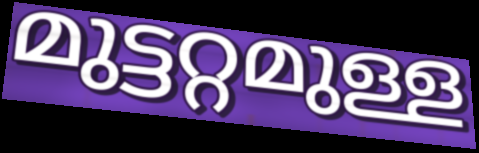
മുട്ടറ്റമുള്ള